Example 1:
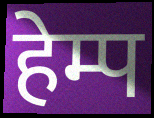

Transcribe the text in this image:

हेम्प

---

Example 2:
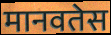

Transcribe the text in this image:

मानवतेस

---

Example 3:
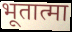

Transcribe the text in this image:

भूतात्मा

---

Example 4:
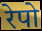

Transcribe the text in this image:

रेपो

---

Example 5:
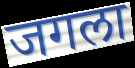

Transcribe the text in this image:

जगला